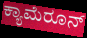
ಕ್ಯಾಮೆರೂನ್